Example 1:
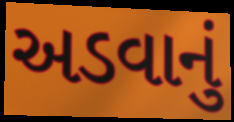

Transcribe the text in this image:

અડવાનું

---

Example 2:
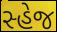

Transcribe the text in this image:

સ્હેજ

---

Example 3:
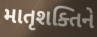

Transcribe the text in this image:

માતૃશક્તિને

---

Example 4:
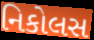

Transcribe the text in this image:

નિકોલસ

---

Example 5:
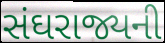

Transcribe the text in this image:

સંઘરાજ્યની